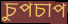
চুপচাপ